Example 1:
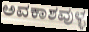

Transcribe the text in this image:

ಅವಕಾಶವುಳ್ಳ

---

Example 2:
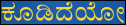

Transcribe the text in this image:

ಕೂಡಿದೆಯೋ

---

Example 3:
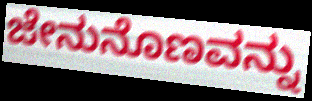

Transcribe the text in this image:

ಜೇನುನೊಣವನ್ನು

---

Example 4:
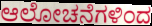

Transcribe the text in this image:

ಆಲೋಚನೆಗಳಿಂದ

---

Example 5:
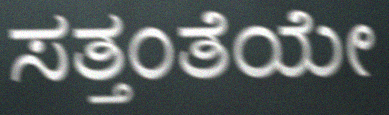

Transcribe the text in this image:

ಸತ್ತಂತೆಯೇ